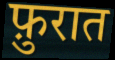
फ़ुरात